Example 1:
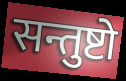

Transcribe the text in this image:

सन्तुष्टो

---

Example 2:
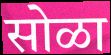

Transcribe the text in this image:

सोळा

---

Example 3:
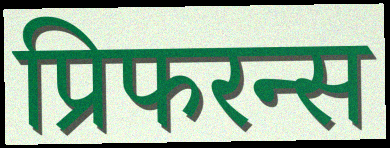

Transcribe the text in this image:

प्रिफरन्स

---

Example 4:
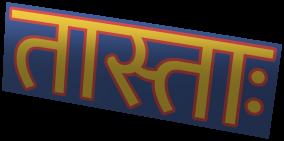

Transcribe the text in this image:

तास्ताः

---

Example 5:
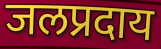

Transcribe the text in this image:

जलप्रदाय